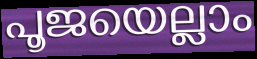
പൂജയെല്ലാം